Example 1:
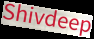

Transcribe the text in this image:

Shivdeep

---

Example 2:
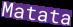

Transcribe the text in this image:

Matata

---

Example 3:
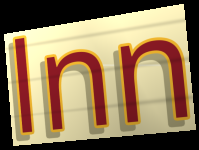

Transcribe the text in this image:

Inn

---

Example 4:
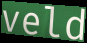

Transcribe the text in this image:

veld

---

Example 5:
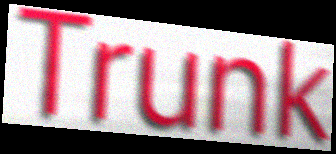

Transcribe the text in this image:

Trunk